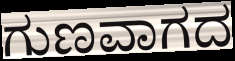
ಗುಣವಾಗದ